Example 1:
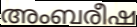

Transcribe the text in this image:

അംബരീഷ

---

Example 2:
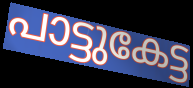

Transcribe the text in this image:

പാട്ടുകേട്ട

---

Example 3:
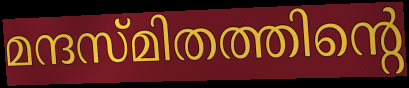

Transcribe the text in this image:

മന്ദസ്മിതത്തിന്റെ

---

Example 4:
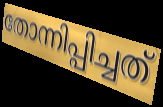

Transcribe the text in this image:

തോന്നിപ്പിച്ചത്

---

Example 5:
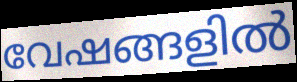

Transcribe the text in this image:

വേഷങ്ങളിൽ